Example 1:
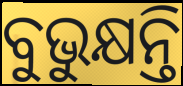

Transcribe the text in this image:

ବୁଭୁକ୍ଷନ୍ତି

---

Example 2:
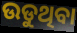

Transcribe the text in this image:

ଉଡୁଥିବା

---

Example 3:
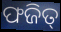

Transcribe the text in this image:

ଫଜିତ୍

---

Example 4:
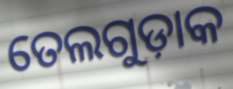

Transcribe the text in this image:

ତେଲଗୁଡ଼ାକ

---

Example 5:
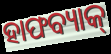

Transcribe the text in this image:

ହାଫବ୍ୟାକ୍